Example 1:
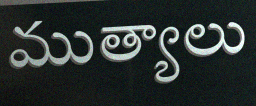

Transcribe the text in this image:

ముత్యాలు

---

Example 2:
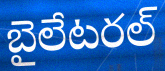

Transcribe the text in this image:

బైలేటరల్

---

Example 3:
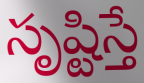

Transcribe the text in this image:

సృష్టిస్తే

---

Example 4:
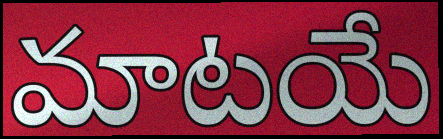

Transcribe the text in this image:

మాటయే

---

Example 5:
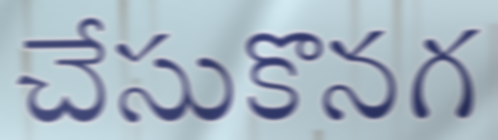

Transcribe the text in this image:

చేసుకొనగ